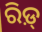
ରିଡ଼୍